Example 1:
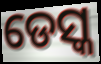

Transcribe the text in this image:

ଡେସ୍କ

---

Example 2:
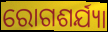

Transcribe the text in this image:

ରୋଗଶର୍ଯ୍ୟା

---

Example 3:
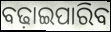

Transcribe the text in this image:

ବଢ଼ାଇପାରିବ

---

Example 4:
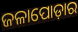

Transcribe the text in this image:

ଜଳାପୋଡ଼ାର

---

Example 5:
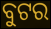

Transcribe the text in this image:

ବୁଟର